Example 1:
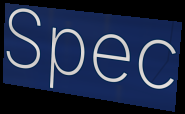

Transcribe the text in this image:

Spec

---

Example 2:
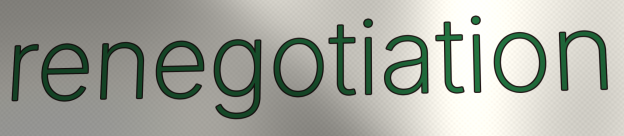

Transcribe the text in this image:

renegotiation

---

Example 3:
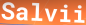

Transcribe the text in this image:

Salvii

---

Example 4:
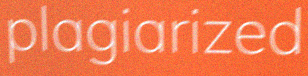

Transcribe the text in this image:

plagiarized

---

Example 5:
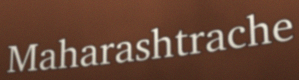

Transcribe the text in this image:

Maharashtrache